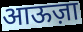
आऊज़ा